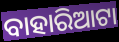
ବାହାରିଆଟା